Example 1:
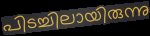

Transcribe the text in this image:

പിടച്ചിലായിരുന്നു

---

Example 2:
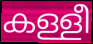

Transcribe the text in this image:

കള്ളീ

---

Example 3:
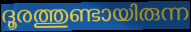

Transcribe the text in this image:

ദൂരത്തുണ്ടായിരുന്ന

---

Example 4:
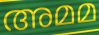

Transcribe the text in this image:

അമമ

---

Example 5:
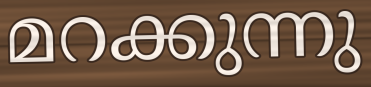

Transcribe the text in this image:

മറക്കുന്നു